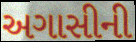
અગાસીની